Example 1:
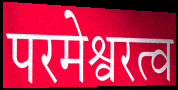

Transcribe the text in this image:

परमेश्वरत्व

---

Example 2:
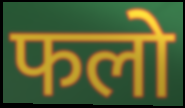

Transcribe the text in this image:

फलो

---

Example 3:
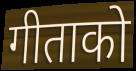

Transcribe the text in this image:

गीताको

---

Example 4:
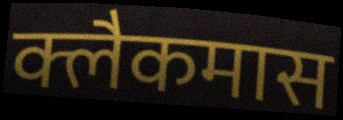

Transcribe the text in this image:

क्लैकमास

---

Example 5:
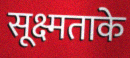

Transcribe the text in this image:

सूक्ष्मताके